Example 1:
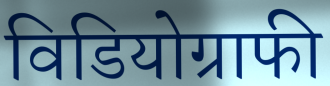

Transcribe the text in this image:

विडियोग्राफी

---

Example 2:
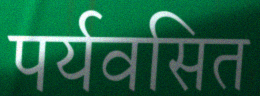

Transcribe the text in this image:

पर्यवसित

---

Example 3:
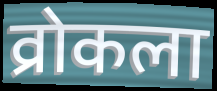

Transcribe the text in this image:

व्रोकला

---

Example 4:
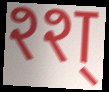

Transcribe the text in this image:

श्श्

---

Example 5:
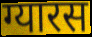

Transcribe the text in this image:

ग्यारस